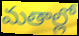
మతాల్లో